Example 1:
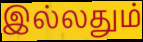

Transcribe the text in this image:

இல்லதும்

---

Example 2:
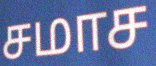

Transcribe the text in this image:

சமாச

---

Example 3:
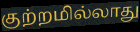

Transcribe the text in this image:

குற்றமில்லாது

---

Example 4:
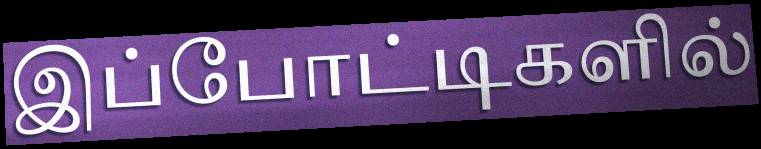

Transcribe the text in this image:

இப்போட்டிகளில்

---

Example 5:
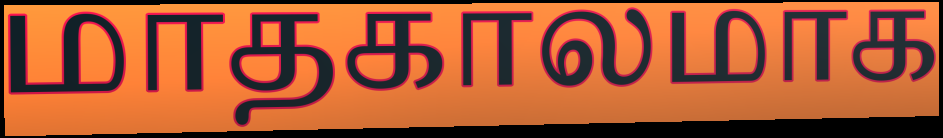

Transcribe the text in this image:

மாதகாலமாக